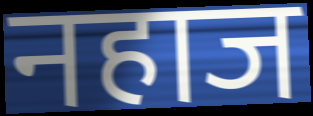
नहाज